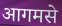
आगमसे